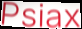
Psiax